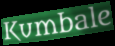
Kumbale